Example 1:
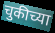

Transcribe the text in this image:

चुकीच्या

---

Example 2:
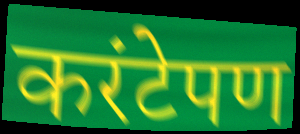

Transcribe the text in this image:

करंटेपण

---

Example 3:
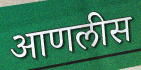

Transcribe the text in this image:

आणलीस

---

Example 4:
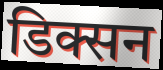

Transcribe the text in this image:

डिक्सन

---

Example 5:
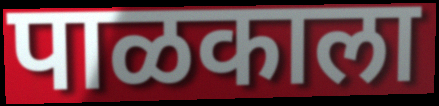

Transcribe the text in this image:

पाळकाला